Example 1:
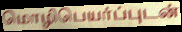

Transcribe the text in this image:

மொழிபெயர்ப்புடன்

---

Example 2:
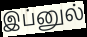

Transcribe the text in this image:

இப்னுல்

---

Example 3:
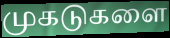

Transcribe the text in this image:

முகடுகளை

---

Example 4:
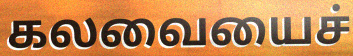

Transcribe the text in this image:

கலவையைச்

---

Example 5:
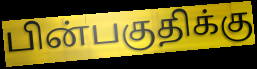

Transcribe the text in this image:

பின்பகுதிக்கு